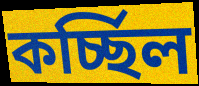
কর্চ্ছিল